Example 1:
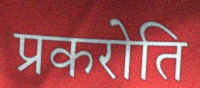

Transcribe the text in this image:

प्रकरोति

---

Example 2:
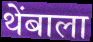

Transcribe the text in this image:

थेंबाला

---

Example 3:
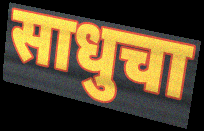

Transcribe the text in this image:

साधुचा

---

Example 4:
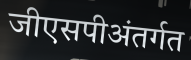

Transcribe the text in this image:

जीएसपीअंतर्गत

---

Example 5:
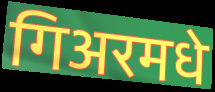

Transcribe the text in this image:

गिअरमधे